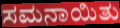
ಸಮನಾಯಿತು